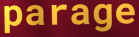
parage